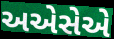
અએસેએ